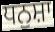
ਧਨੁਸ਼ਾ